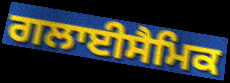
ਗਲਾਈਸੈਮਿਕ